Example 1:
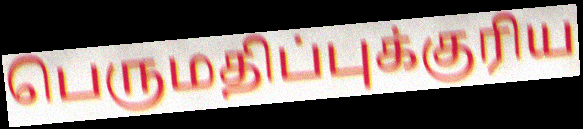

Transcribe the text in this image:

பெருமதிப்புக்குரிய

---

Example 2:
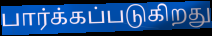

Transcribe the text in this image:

பார்க்கப்படுகிறது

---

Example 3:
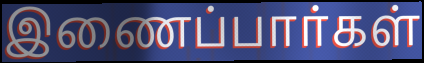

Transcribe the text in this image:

இணைப்பார்கள்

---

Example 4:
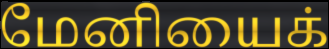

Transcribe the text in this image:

மேனியைக்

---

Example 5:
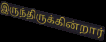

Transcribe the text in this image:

இருந்திருக்கின்றார்